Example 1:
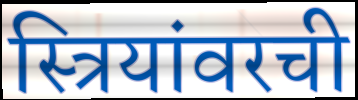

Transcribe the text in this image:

स्त्रियांवरची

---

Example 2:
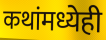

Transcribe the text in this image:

कथांमध्येही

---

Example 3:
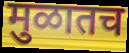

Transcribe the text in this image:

मुळातच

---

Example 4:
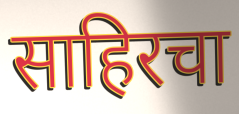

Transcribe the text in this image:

साहिरचा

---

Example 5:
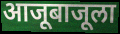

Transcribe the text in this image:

आजूबाजूला